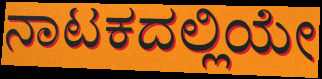
ನಾಟಕದಲ್ಲಿಯೇ